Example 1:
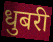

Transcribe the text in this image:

धुबरी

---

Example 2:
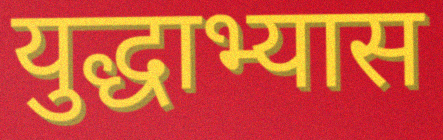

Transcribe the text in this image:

युद्धाभ्यास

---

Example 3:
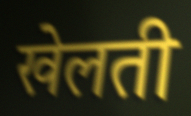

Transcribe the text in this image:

खेलती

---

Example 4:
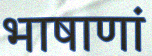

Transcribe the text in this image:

भाषाणां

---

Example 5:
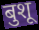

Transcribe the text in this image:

बुशू